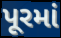
પૂરમાં